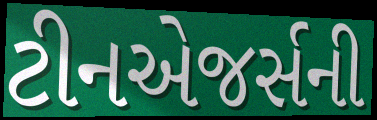
ટીનએજર્સની